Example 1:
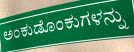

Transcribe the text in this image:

ಅಂಕುಡೊಂಕುಗಳನ್ನು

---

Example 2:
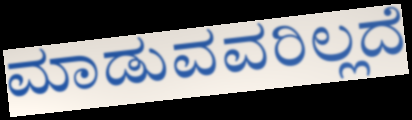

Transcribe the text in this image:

ಮಾಡುವವರಿಲ್ಲದೆ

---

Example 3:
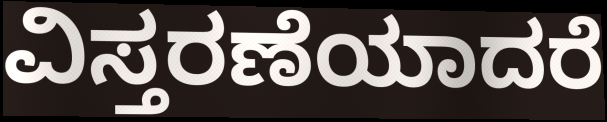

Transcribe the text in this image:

ವಿಸ್ತರಣೆಯಾದರೆ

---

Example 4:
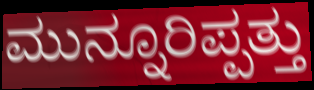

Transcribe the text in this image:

ಮುನ್ನೂರಿಪ್ಪತ್ತು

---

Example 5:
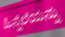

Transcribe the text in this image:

ಹಿನ್ನೆಲೆಯನ್ನು